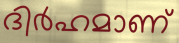
ദിർഹമാണ്